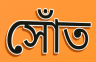
সোঁত